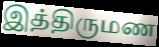
இத்திருமண